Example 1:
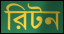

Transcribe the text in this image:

রিটন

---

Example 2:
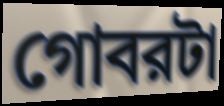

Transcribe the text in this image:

গোবরটা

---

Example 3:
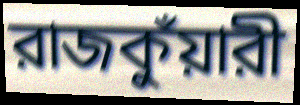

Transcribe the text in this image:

রাজকুঁয়ারী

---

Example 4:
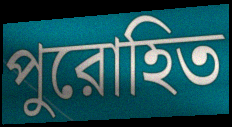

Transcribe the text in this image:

পুরোহিত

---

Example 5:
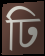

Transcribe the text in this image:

ঢি